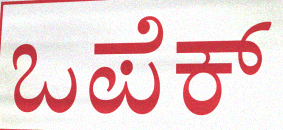
ಒಪೆಕ್